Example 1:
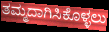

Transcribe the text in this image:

ತಮ್ಮದಾಗಿಸಿಕೊಳ್ಳಲು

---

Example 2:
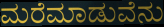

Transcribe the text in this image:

ಮರೆಮಾಡುವೆನು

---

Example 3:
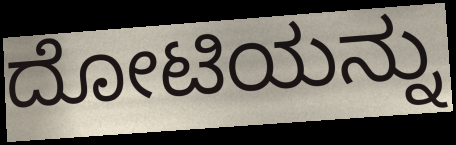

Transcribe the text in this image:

ದೋಟಿಯನ್ನು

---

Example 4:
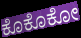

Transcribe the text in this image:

ಕೊಕೊಕೋ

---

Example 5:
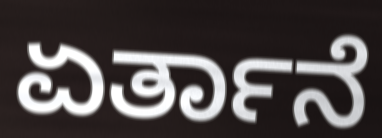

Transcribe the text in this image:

ಏರ್ತಾನೆ